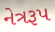
નેત્રરૂપ